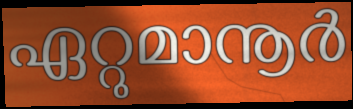
ഏറ്റുമാനൂർ